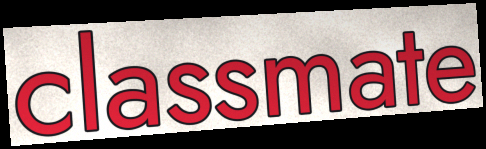
classmate